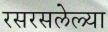
रसरसलेल्या